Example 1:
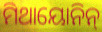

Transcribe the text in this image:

ମିଥାୟୋନିନ୍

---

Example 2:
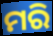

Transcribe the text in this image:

ମରି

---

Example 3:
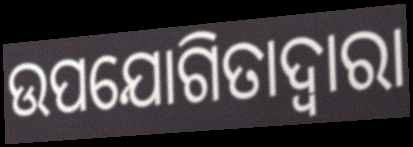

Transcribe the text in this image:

ଉପଯୋଗିତାଦ୍ୱାରା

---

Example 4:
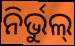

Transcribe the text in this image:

ନିର୍ଭୁଲ୍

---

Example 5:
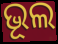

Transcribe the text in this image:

ଭୂଲ